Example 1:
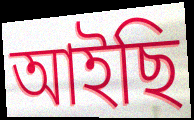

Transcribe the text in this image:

আইছি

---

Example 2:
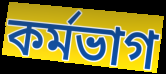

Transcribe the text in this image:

কৰ্মভাগ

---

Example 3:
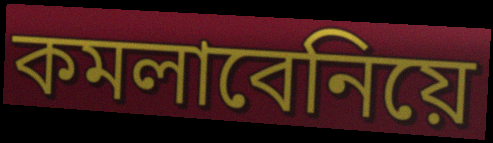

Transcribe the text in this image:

কমলাবেনিয়ে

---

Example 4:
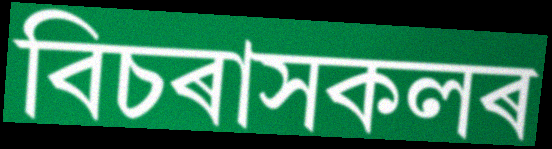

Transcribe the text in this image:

বিচৰাসকলৰ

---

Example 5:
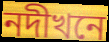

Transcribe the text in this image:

নদীখনে